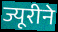
ज्यूरीने